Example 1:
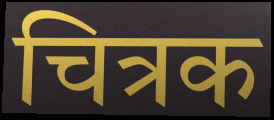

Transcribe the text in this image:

चित्रक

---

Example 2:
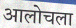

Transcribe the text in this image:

आलोचला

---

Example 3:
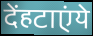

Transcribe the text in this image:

देंहटाएंये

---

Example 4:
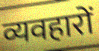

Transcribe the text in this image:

व्यवहारों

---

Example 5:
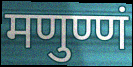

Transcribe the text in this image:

मणुण्णं